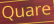
Quare